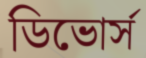
ডিভোর্স